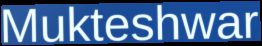
Mukteshwar